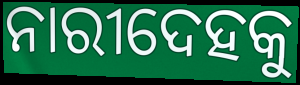
ନାରୀଦେହକୁ